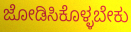
ಜೋಡಿಸಿಕೊಳ್ಳಬೇಕು